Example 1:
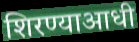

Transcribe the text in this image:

शिरण्याआधी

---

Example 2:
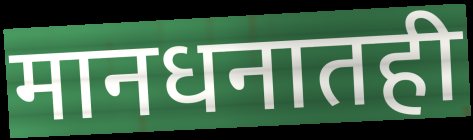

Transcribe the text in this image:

मानधनातही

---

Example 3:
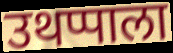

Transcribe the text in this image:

उथप्पाला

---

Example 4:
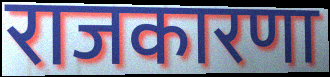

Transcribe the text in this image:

राजकारणा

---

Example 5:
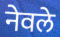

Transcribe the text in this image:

नेवले